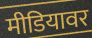
मीडियावर